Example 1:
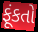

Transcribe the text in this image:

ફૂંકતો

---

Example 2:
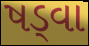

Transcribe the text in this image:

ષડ્વા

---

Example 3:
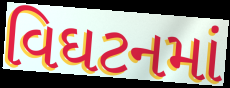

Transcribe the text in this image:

વિઘટનમાં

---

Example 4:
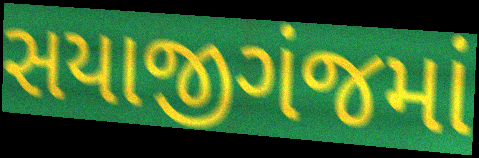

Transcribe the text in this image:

સયાજીગંજમાં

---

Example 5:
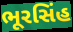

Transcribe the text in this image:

ભૂરસિંહ